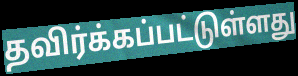
தவிர்க்கப்பட்டுள்ளது